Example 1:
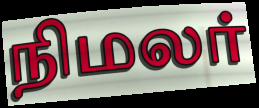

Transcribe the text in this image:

நிமலர்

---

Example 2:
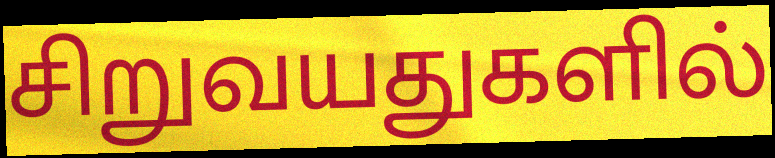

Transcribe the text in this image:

சிறுவயதுகளில்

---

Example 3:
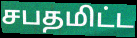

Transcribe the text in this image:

சபதமிட்ட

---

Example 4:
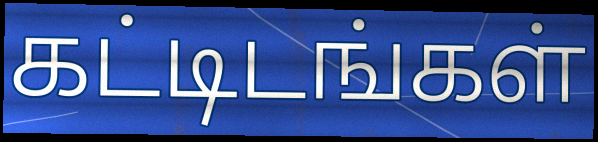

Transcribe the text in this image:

கட்டிடங்கள்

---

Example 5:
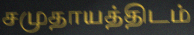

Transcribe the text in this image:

சமுதாயத்திடம்